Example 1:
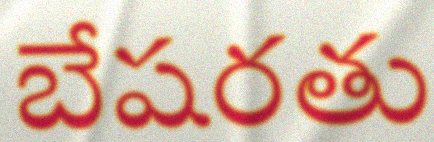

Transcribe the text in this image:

బేషరతు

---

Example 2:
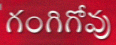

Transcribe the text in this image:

గంగిగోవు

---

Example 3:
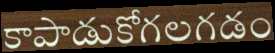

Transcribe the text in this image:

కాపాడుకోగలగడం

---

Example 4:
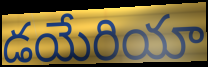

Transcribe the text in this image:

డయేరియా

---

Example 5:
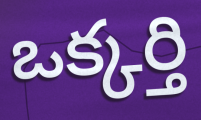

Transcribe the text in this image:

ఒక్కర్తి